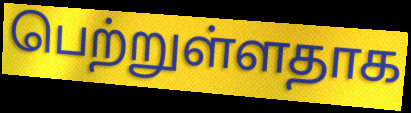
பெற்றுள்ளதாக